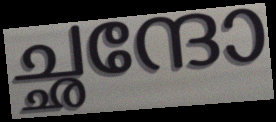
ച്ഛന്ദോ